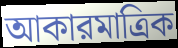
আকারমাত্রিক